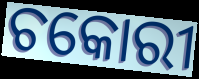
ଚକୋରୀ